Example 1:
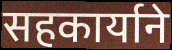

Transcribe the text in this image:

सहकार्याने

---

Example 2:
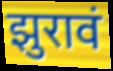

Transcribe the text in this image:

झुरावं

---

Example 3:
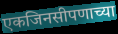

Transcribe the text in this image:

एकजिनसीपणाच्या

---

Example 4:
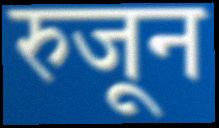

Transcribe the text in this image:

रुजून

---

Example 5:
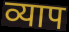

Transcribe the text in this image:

व्याप